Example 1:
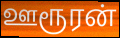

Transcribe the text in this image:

ஊரூரன்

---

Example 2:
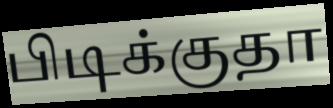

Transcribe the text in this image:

பிடிக்குதா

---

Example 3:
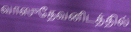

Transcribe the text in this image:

வாஸுதேவனிடத்தில்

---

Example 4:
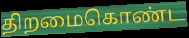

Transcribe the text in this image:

திறமைகொண்ட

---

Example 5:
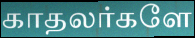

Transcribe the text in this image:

காதலர்களே